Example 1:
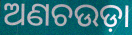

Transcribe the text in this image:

ଅଣଚଉଡ଼ା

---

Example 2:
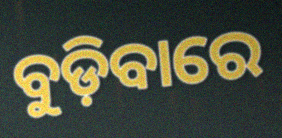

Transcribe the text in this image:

ବୁଡ଼ିବାରେ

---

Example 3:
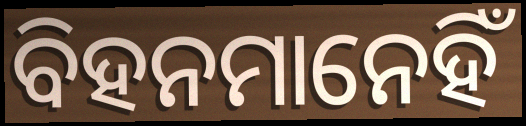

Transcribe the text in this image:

ବିହନମାନେହିଁ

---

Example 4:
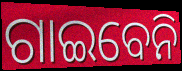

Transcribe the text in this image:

ଗାଇବେନି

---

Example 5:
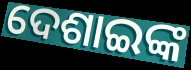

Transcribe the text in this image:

ଦେଶାଇଙ୍କ